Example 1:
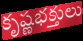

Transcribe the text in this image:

కృష్ణభక్తులు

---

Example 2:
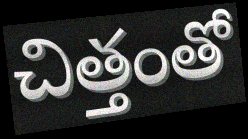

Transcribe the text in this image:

చిత్తంతో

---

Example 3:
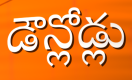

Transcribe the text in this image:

డౌన్లోడ్లు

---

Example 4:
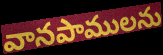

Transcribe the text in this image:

వానపాములను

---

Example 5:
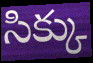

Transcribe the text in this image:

సిక్కు